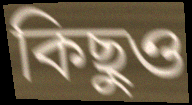
কিছুও